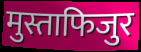
मुस्ताफिजुर